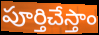
పూర్తిచేస్తాం